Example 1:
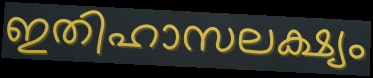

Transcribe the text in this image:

ഇതിഹാസലക്ഷ്യം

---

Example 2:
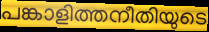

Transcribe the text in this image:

പങ്കാളിത്തനീതിയുടെ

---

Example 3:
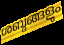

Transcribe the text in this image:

ശബ്ദങ്ങളും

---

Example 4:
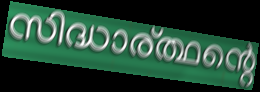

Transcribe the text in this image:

സിദ്ധാര്ത്ഥന്റെ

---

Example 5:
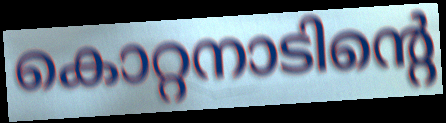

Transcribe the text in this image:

കൊറ്റനാടിന്റെ